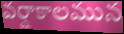
వర్షాకాలమున